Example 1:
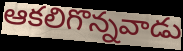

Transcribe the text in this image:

ఆకలిగొన్నవాడు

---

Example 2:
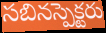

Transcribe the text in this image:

సబినస్పెక్టరు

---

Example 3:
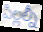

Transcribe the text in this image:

పిల్లల్నీ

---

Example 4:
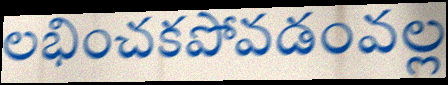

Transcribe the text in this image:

లభించకపోవడంవల్ల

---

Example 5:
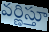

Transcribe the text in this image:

వర్ణిస్తూ